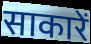
साकारें